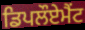
ਡਿਪਲੌਏਮੈਂਟ